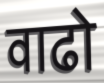
वाढो